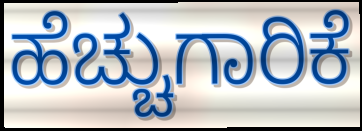
ಹೆಚ್ಚುಗಾರಿಕೆ